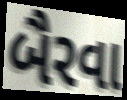
બૈરવા